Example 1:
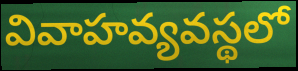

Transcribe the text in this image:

వివాహవ్యవస్థలో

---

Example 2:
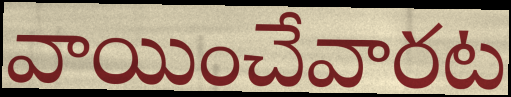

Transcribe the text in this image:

వాయించేవారట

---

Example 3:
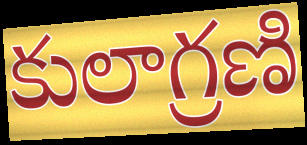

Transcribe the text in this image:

కులాగ్రణి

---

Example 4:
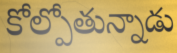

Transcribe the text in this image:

కోల్పోతున్నాడు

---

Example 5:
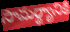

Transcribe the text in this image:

సామర్థ్యానికి